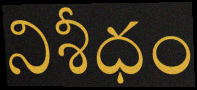
నిశీధం